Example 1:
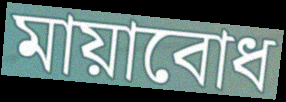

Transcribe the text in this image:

মায়াবোধ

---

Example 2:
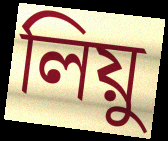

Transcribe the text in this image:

লিয়ু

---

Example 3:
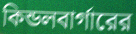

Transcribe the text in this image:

কিন্ডলবার্গারের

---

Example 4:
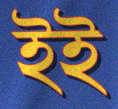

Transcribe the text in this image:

ইই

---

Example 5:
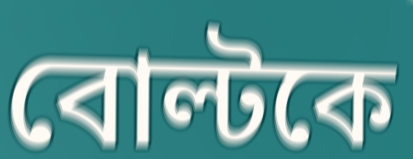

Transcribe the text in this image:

বোল্টকে